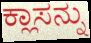
ಕ್ಲಾಸನ್ನು